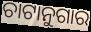
ଚାଟାନୁଗାର